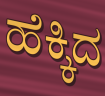
ಹೆಕ್ಕಿದ